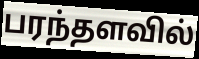
பரந்தளவில்